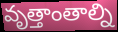
వృత్తాంతాల్ని